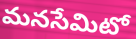
మనసేమిటో